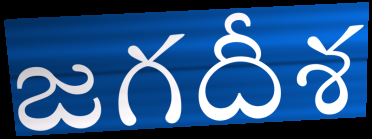
జగదీశ